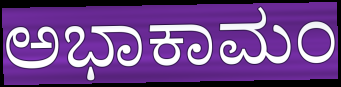
ಅಭಾಕಾಮಂ